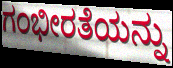
ಗಂಭೀರತೆಯನ್ನು